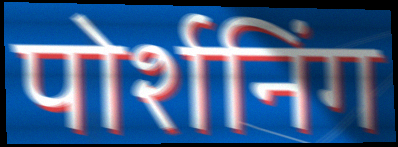
पोर्शनिंग